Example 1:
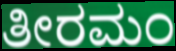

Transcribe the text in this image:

ತೀರಮಂ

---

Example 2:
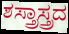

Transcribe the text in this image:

ಶಸ್ತ್ರಾಸ್ತ್ರದ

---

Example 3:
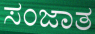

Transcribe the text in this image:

ಸಂಜಾತ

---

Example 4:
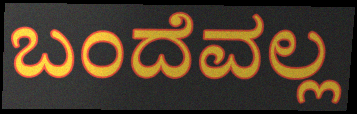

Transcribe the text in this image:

ಬಂದೆವಲ್ಲ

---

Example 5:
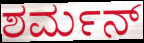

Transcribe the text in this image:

ಶರ್ಮನ್